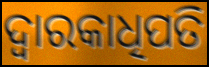
ଦ୍ୱାରକାଧିପତି